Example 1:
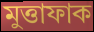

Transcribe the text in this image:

মুত্তাফাক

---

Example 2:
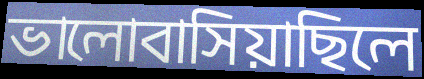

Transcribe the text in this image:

ভালোবাসিয়াছিলে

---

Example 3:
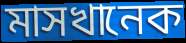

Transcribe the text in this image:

মাসখানেক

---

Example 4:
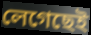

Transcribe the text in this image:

লেগেছেই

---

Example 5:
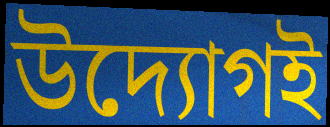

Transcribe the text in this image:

উদ্যোগই